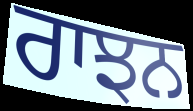
ਰਾਝਨ